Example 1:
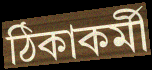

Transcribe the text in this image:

ঠিকাকর্মী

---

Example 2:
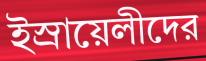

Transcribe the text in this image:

ইস্রায়েলীদের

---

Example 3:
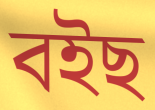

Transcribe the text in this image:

বইছ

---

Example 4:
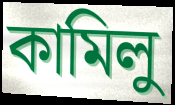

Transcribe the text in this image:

কামিলু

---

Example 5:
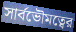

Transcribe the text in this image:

সার্বভৌমত্বের